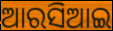
ଆରସିଆଇ